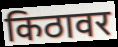
किठावर